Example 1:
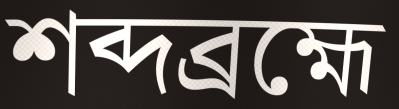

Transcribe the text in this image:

শব্দব্রহ্মে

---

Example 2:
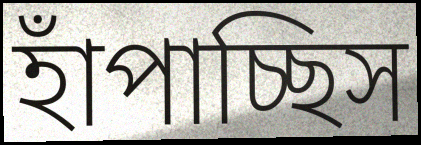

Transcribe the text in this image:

হাঁপাচ্ছিস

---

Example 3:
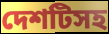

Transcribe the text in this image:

দেশটিসহ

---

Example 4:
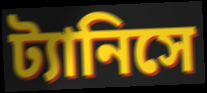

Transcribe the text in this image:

ট্যানিসে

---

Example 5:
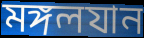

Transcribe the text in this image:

মঙ্গলযান